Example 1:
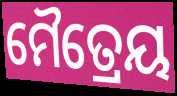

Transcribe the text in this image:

ମୈତ୍ରେୟ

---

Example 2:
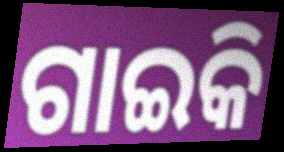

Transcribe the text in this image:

ଗାଇକି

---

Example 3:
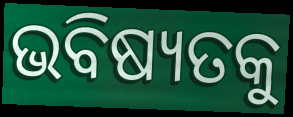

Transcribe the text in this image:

ଭବିଷ୍ୟତକୁ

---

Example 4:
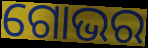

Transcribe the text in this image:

ଗୋଭର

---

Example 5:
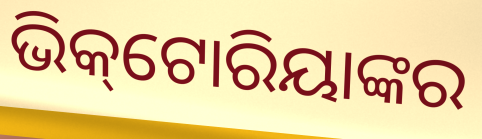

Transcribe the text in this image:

ଭିକ୍‌ଟୋରିୟାଙ୍କର